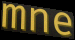
mne